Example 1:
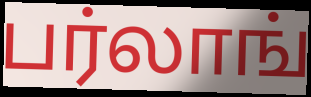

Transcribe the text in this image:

பர்லாங்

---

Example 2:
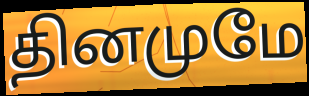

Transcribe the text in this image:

தினமுமே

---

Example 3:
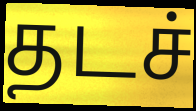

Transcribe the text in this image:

தடச்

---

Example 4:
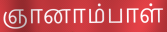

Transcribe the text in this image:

ஞானாம்பாள்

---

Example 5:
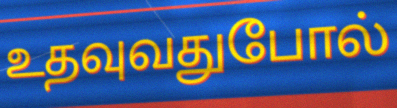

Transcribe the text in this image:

உதவுவதுபோல்